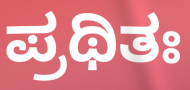
ಪ್ರಥಿತಃ